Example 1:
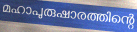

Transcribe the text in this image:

മഹാപുരുഷാരത്തിന്റെ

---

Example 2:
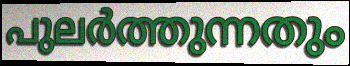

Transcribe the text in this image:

പുലർത്തുന്നതും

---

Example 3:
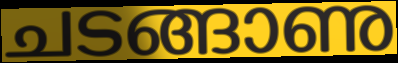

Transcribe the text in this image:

ചടങ്ങാണു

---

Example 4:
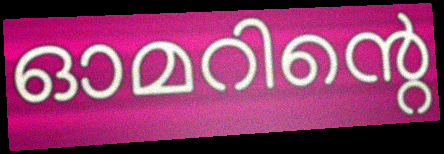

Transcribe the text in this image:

ഓമറിന്റെ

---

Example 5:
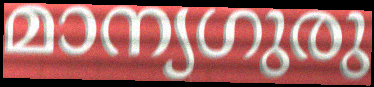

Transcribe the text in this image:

മാന്യഗുരു